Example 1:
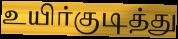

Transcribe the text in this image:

உயிர்குடித்து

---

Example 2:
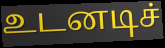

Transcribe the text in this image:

உடனடிச்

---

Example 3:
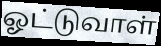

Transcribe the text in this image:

ஓட்டுவாள்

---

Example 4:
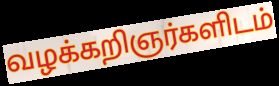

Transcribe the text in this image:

வழக்கறிஞர்களிடம்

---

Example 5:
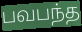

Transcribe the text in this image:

பவபந்த